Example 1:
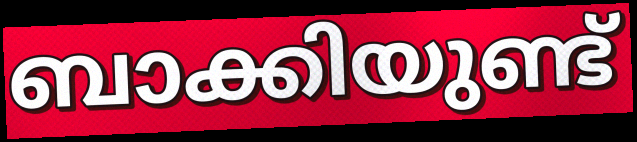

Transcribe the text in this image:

ബാക്കിയുണ്ട്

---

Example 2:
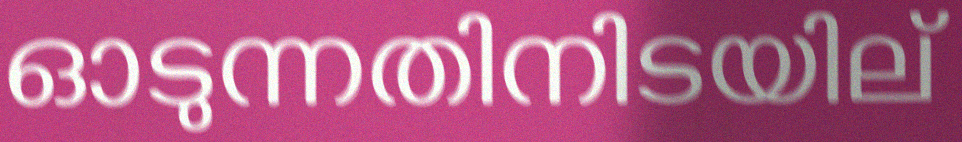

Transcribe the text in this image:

ഓടുന്നതിനിടയില്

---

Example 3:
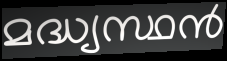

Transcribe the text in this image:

മദ്ധ്യസ്ഥൻ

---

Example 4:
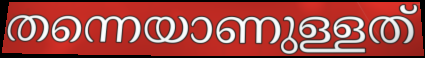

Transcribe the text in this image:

തന്നെയാണുള്ളത്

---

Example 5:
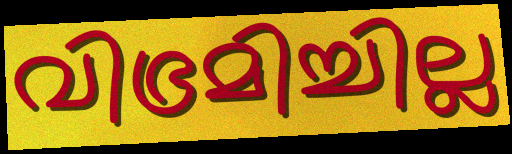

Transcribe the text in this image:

വിഭ്രമിച്ചില്ല